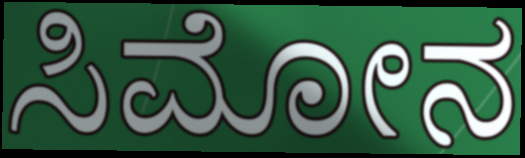
ಸಿಮೋನ